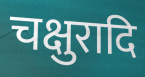
चक्षुरादि